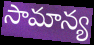
సామాన్య